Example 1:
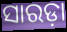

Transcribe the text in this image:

ସାରଡ଼ା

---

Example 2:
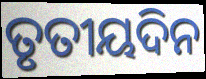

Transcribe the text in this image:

ତୃତୀୟଦିନ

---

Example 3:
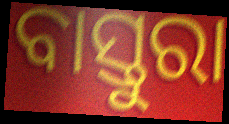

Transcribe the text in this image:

ବାସ୍ତୁରା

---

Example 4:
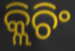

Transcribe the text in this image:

କ୍ଲିଚିଂ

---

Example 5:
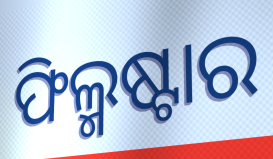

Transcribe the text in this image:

ଫିଲ୍ମଷ୍ଟାର